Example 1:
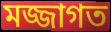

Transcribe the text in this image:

মজ্জাগত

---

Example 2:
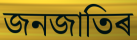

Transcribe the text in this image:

জনজাতিৰ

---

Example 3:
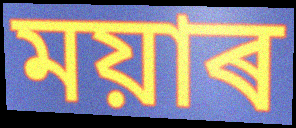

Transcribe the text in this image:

ময়াৰ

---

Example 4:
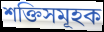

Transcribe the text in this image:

শক্তিসমূহক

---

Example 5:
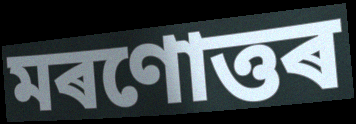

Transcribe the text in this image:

মৰণোত্তৰ